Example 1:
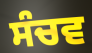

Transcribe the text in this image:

ਸੰਚਵ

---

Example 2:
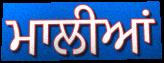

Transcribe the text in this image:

ਮਾਲੀਆਂ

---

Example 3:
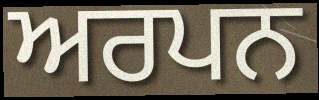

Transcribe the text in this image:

ਅਰਪਨ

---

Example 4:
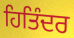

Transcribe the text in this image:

ਹਿਤਿੰਦਰ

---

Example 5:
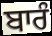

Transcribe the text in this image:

ਬਾਰੰ